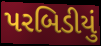
પરબિડીયું